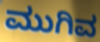
ಮುಗಿವ